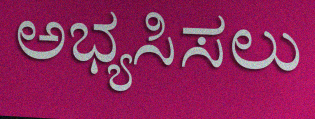
ಅಭ್ಯಸಿಸಲು